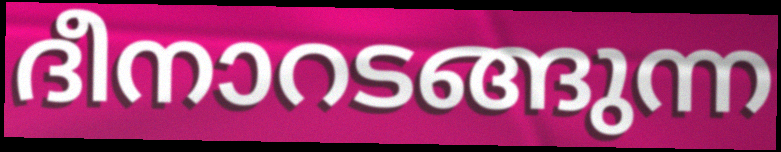
ദീനാറടങ്ങുന്ന